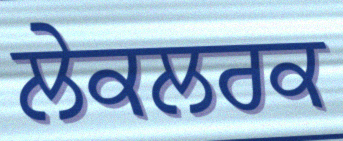
ਲੇਕਲਰਕ